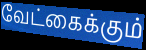
வேட்கைக்கும்